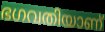
ഭഗവതിയാണ്